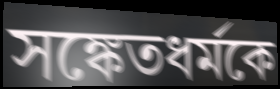
সঙ্কেতধর্মকে